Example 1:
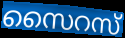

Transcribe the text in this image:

സൈറസ്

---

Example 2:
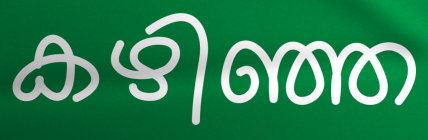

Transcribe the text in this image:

കഴിഞ്ഞ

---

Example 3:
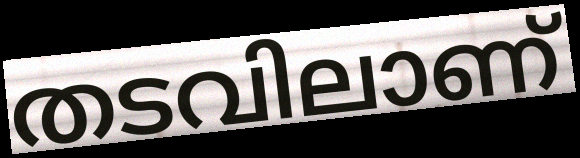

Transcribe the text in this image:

തടവിലാണ്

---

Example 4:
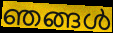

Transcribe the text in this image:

ഞങ്ങൾ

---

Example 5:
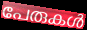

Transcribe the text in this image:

പേരുകൾ